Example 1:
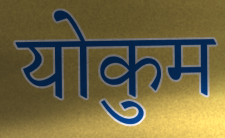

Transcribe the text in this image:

योकुम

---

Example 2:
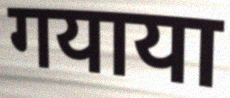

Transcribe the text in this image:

गयाया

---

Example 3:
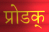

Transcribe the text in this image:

प्रोडक्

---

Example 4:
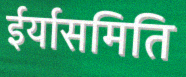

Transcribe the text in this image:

ईर्यासमिति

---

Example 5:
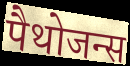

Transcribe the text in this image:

पैथोजन्स